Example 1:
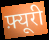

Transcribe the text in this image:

फ़्यूरी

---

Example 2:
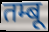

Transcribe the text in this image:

तम्‍बू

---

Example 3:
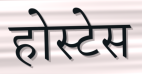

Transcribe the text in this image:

होस्टेस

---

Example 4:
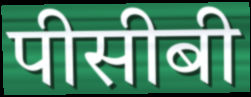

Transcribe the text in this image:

पीसीबी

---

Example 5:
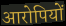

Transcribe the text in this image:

आरोपियों